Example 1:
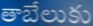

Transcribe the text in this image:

తాబేలుకు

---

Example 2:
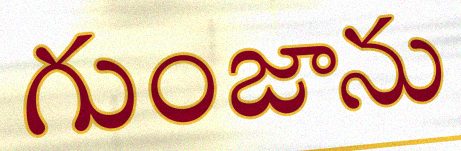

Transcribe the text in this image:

గుంజాను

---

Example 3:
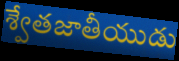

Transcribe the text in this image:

శ్వేతజాతీయుడు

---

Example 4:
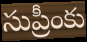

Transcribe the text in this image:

సుప్రీంకు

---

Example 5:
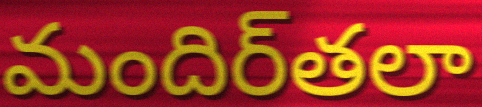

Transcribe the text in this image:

మందిర్‌తలా